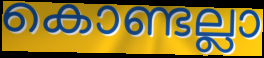
കൊണ്ടല്ലാ